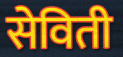
सेविती